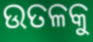
ଉତଳକୁ